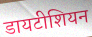
डायटीशियन